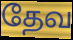
தேவ